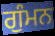
ਗੁੰਮਨ